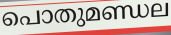
പൊതുമണ്ഡല